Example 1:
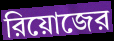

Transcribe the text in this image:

রিয়োজের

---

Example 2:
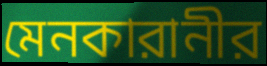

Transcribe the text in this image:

মেনকারানীর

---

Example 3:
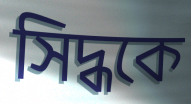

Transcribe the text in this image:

সিদ্ধকে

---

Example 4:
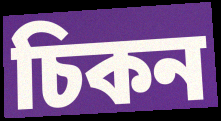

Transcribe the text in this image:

চিকন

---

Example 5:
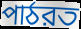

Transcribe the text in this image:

পাঠরত